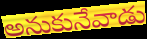
అనుకునేవాడు